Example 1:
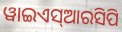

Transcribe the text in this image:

ୱାଇଏସ୍ଆରସିପି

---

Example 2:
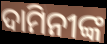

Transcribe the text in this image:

ଦାମିନୀଙ୍କ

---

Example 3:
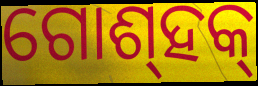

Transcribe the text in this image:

ଗୋଶ୍‍ହକ୍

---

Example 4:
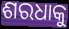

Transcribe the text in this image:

ଶରଧାକୁ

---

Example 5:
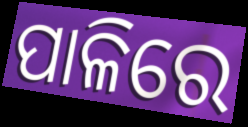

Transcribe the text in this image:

ପାଳିରେ